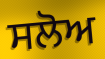
ਸਲੋਅ